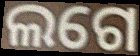
ଲଗେ